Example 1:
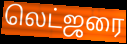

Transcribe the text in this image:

லெட்ஜரை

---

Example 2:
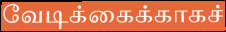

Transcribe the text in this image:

வேடிக்கைக்காகச்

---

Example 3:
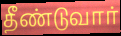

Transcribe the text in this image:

தீண்டுவார்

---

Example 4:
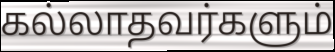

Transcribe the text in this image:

கல்லாதவர்களும்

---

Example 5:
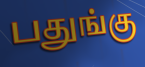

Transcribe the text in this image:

பதுங்கு